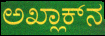
ಅಖ್ಲಾಕ್‍ನ